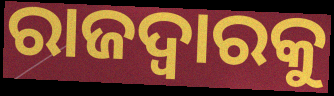
ରାଜଦ୍ୱାରକୁ